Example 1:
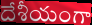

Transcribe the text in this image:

దేశీయంగా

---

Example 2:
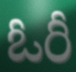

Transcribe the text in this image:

ఓరీ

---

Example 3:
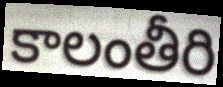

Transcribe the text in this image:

కాలంతీరి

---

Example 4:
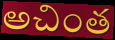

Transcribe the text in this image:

అచింత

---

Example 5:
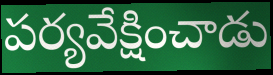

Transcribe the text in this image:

పర్యవేక్షించాడు